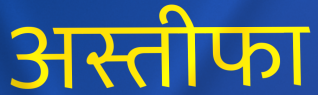
अस्तीफा